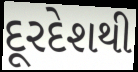
દૂરદેશથી